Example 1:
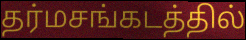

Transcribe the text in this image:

தர்மசங்கடத்தில்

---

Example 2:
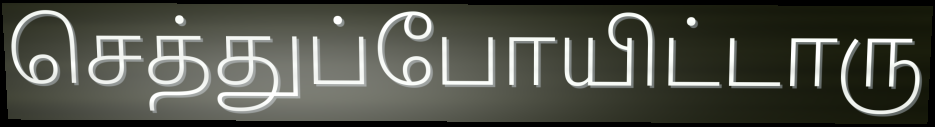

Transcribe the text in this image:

செத்துப்போயிட்டாரு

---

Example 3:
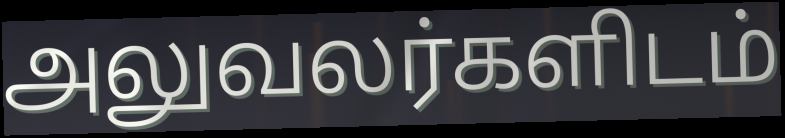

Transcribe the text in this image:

அலுவலர்களிடம்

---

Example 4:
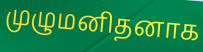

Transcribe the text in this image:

முழுமனிதனாக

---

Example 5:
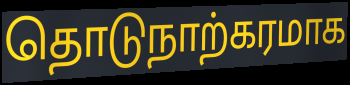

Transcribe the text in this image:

தொடுநாற்கரமாக